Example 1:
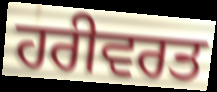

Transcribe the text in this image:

ਹਰੀਵਰਤ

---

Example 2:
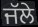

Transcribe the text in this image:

ਜੱਲੇ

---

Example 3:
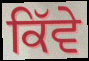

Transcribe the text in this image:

ਕਿੱਵੇ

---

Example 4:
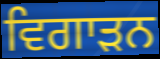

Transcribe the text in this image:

ਵਿਗਾੜਨ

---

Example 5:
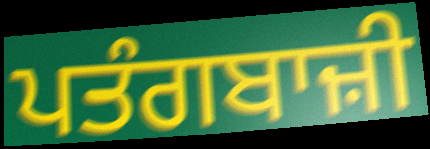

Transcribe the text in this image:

ਪਤੰਗਬਾਜ਼ੀ